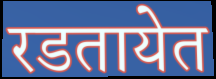
रडतायेत